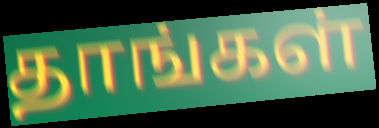
தாங்கள்